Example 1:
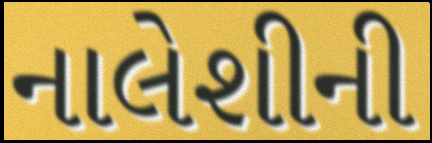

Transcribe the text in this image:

નાલેશીની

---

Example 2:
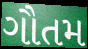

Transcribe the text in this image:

ગૌતમ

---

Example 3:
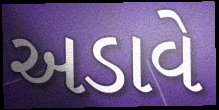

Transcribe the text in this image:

અડાવે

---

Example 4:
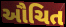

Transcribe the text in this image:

ઔચિત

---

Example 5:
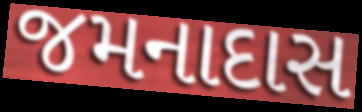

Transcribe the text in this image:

જમનાદાસ